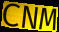
CNM